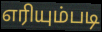
எரியும்படி